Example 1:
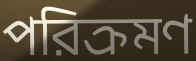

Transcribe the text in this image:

পরিক্রমণ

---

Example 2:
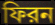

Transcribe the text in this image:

ফিরন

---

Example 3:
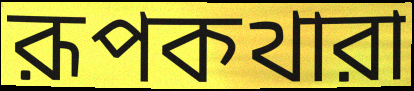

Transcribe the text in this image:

রূপকথারা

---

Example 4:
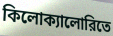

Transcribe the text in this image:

কিলোক্যালোরিতে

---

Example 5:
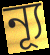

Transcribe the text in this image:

ন্যূ